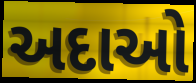
અદાઓ